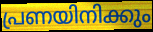
പ്രണയിനിക്കും